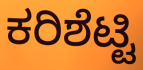
ಕರಿಶೆಟ್ಟಿ